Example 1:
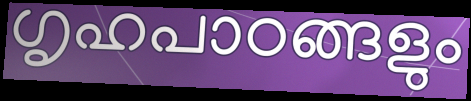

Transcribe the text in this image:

ഗൃഹപാഠങ്ങളും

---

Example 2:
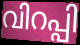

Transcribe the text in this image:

വിറപ്പി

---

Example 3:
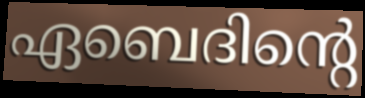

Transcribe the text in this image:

ഏബെദിന്റെ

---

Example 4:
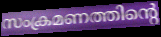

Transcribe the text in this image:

സംക്രമണത്തിന്റെ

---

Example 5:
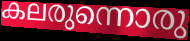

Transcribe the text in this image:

കലരുന്നൊരു